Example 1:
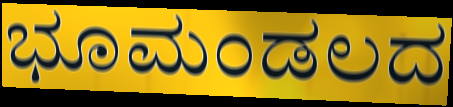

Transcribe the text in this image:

ಭೂಮಂಡಲದ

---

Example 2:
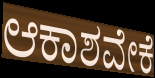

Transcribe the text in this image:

ಆಕಾಶವೇಕೆ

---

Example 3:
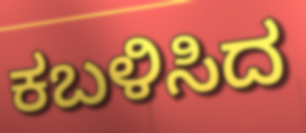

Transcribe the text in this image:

ಕಬಳಿಸಿದ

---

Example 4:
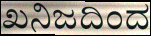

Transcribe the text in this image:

ಖನಿಜದಿಂದ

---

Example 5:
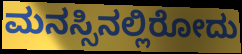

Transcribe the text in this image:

ಮನಸ್ಸಿನಲ್ಲಿರೋದು